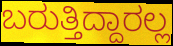
ಬರುತ್ತಿದ್ದಾರಲ್ಲ